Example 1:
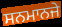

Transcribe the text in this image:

ਸਨਮਾਨਜੇ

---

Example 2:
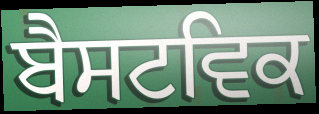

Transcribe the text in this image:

ਬੈਸਟਵਿਕ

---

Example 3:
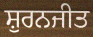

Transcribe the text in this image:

ਸ਼ੁਰਨਜੀਤ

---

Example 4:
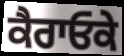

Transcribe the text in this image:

ਕੈਰਾਓਕੇ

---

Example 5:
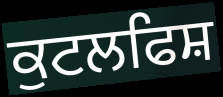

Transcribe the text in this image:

ਕੁਟਲਫਿਸ਼